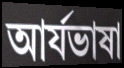
আর্যভাষা